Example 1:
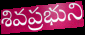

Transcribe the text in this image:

శివప్రభుని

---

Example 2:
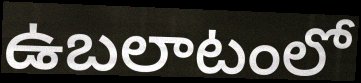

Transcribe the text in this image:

ఉబలాటంలో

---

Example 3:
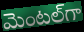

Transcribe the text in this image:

మెంటల్‌గా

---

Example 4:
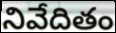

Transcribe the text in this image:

నివేదితం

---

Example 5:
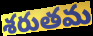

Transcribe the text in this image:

శరుతమ